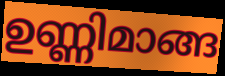
ഉണ്ണിമാങ്ങ